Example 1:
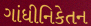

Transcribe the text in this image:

ગાંધીનિકેતન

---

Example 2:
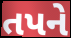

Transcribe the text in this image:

તપને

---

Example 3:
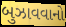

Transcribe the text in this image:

બુઝાવવાનો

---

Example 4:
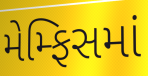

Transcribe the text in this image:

મેમ્ફિસમાં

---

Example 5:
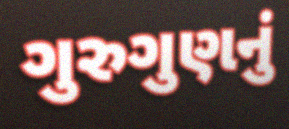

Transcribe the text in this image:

ગુરુગુણનું